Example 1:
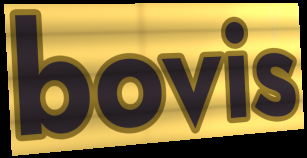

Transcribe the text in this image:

bovis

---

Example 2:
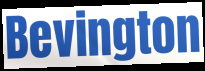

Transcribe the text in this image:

Bevington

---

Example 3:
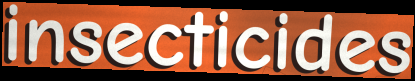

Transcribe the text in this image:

insecticides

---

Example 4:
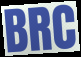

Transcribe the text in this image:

BRC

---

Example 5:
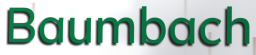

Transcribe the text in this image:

Baumbach